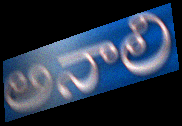
అనాలి